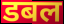
डबल